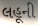
લહૂની